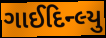
ગાઈદિન્લ્યુ